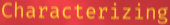
Characterizing